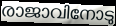
രാജാവിനോടു